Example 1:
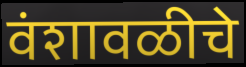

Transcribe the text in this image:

वंशावळीचे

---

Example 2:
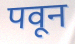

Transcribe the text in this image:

पवून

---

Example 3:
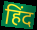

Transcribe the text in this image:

हिंद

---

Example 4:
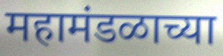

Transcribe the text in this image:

महामंडळाच्या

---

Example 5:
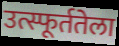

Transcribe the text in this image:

उत्स्फूर्ततेला